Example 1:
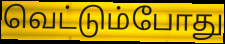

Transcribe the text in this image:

வெட்டும்போது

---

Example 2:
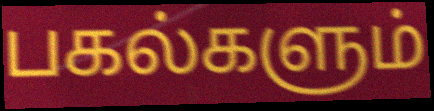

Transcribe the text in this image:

பகல்களும்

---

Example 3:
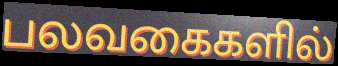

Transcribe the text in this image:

பலவகைகளில்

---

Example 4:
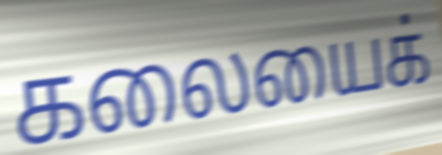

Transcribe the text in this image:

கலையைக்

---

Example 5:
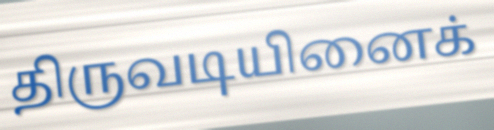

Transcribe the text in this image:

திருவடியினைக்